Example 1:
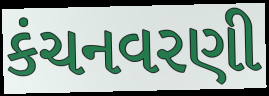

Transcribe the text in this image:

કંચનવરણી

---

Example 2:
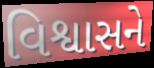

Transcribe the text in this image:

વિશ્વાસને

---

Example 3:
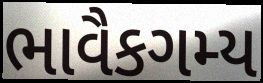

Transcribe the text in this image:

ભાવૈકગમ્ય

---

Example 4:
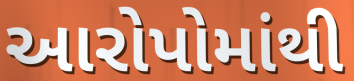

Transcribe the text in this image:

આરોપોમાંથી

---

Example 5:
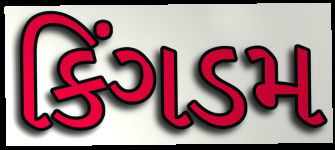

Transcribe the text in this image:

કિંગડમ